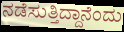
ನಡೆಸುತ್ತಿದ್ದಾನೆಂದು